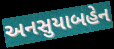
અનસુયાબહેન